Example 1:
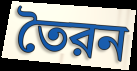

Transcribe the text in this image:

তৈরন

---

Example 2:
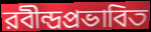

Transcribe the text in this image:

রবীন্দ্রপ্রভাবিত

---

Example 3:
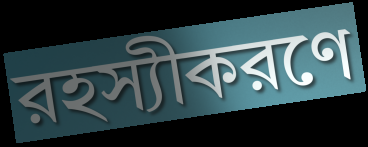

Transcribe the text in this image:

রহস্যীকরণে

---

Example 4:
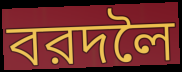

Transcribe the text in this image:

বরদলৈ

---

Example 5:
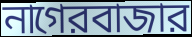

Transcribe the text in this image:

নাগেরবাজার